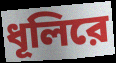
ধূলিরে